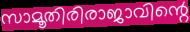
സാമൂതിരിരാജാവിന്റെ